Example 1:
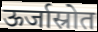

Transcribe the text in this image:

ऊर्जास्रोत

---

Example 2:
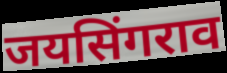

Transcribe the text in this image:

जयसिंगराव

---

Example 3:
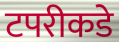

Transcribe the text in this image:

टपरीकडे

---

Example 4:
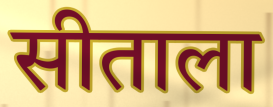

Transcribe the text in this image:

सीताला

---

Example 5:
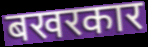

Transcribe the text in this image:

बखरकार